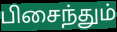
பிசைந்தும்